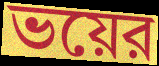
ভয়ের